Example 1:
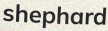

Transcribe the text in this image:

shephard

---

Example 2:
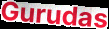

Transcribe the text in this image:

Gurudas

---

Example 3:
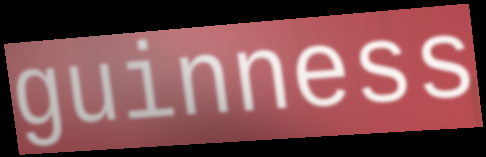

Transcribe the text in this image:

guinness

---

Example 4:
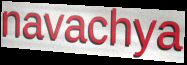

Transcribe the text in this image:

navachya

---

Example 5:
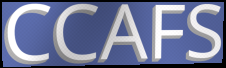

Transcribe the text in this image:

CCAFS